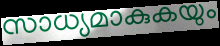
സാധ്യമാകുകയും